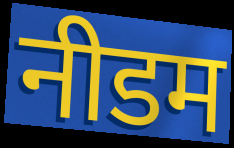
नीडम